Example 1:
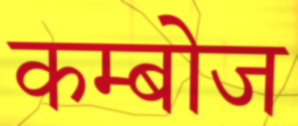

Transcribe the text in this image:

कम्बोज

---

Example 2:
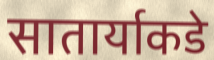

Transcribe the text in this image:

सातार्याकडे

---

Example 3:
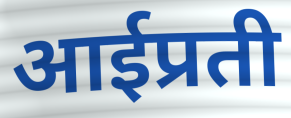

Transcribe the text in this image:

आईप्रती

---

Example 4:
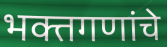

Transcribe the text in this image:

भक्तगणांचे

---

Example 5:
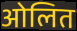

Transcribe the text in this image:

ओलित